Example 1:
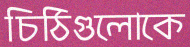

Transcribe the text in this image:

চিঠিগুলোকে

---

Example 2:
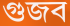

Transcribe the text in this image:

গুজব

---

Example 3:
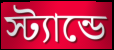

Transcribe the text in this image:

স্ট্যান্ডে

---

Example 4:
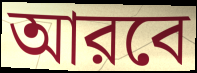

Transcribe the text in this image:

আরবে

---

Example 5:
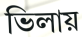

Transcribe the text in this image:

ভিলায়